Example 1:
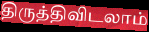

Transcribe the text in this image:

திருத்திவிடலாம்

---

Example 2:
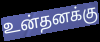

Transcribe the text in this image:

உன்தனக்கு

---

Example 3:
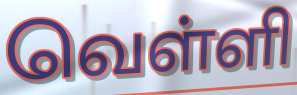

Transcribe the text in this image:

வெள்ளி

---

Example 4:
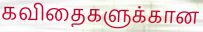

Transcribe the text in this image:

கவிதைகளுக்கான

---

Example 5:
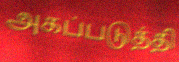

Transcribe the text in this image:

அகப்படுத்தி